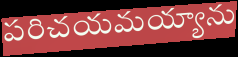
పరిచయమయ్యాను